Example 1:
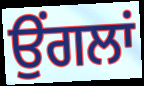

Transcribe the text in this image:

ਉੰਗਲਾਂ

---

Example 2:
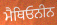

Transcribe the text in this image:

ਮੈਥਿਓਨੀਨ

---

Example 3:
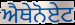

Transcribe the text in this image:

ਐਥੇਨੋਏਟ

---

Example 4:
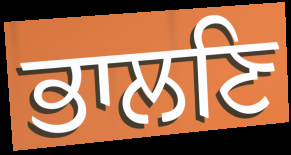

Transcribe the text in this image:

ਭਾਲਣਿ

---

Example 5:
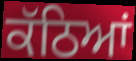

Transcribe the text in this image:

ਕੱਠਿਆਂ